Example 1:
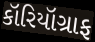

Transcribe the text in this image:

કૉરિયૉગ્રાફ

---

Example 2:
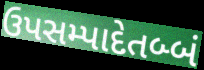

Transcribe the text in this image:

ઉપસમ્પાદેતબ્બં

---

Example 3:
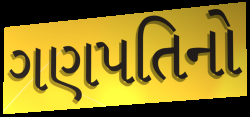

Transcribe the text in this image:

ગણપતિનો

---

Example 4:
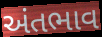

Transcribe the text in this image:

અંતભાવ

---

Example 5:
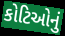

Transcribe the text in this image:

કોટિઓનું